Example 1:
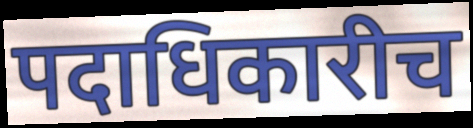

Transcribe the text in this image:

पदाधिकारीच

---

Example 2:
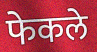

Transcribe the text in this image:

फेकले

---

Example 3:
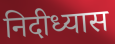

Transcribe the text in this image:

निदीध्यास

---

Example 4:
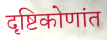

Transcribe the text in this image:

दृष्टिकोणांत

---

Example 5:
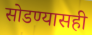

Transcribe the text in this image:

सोडण्यासही